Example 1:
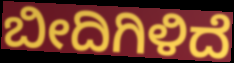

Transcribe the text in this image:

ಬೀದಿಗಿಳಿದೆ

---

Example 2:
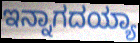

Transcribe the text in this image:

ಇನ್ನಾಗದಯ್ಯಾ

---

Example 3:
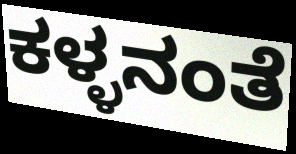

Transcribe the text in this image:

ಕಳ್ಳನಂತೆ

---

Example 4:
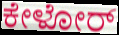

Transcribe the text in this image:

ಕೇಳೋರ್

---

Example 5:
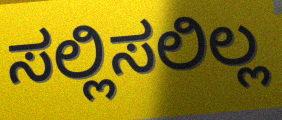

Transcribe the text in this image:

ಸಲ್ಲಿಸಲಿಲ್ಲ